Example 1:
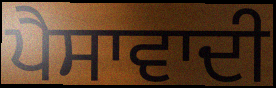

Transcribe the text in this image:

ਪੈਸਾਵਾਦੀ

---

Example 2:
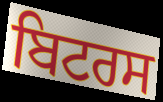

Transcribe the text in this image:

ਬਿਟਰਸ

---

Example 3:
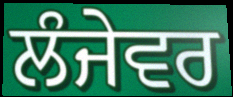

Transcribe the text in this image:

ਲੰਜੇਵਰ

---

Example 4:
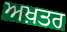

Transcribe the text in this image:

ਅਖ਼ਤਰ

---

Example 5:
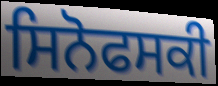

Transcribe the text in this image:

ਸਿਨੋਫਸਕੀ